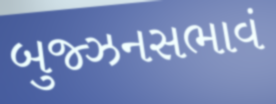
બુજ્ઝનસભાવં